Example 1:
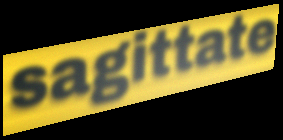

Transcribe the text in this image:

sagittate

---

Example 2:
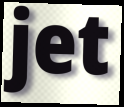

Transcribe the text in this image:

jet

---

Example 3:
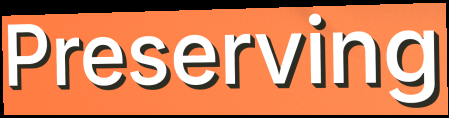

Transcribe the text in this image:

Preserving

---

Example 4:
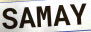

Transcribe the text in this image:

SAMAY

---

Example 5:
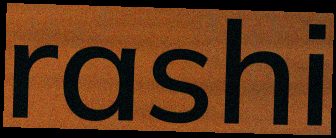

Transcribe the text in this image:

rashi